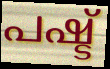
പഷ്ട്